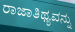
ರಾಜಾತಿಥ್ಯವನ್ನು